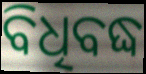
ବିଧିବଦ୍ଧ